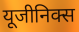
यूजीनिक्स